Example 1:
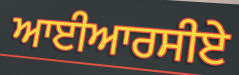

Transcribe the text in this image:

ਆਈਆਰਸੀਏ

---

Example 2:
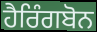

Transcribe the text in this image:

ਹੈਰਿੰਗਬੋਨ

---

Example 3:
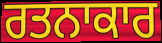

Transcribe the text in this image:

ਰਤਨਾਕਾਰ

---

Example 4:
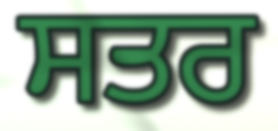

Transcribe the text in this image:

ਸਤਰ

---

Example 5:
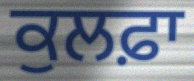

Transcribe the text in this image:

ਕੁਲਫ਼ਾ